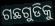
ଗଛଗୁଡିକୁ